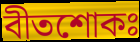
বীতশোকঃ